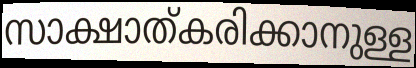
സാക്ഷാത്കരിക്കാനുള്ള